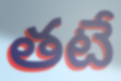
తటే